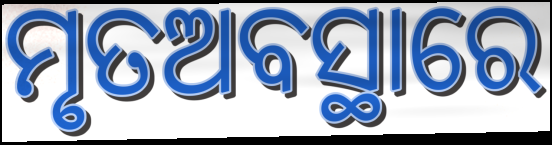
ମୃତଅବସ୍ଥାରେ